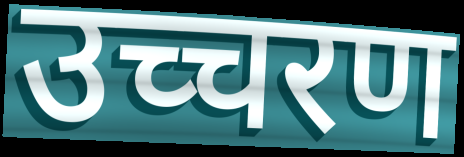
उच्चरण